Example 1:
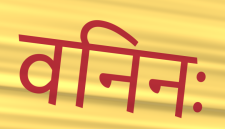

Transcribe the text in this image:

वनिनः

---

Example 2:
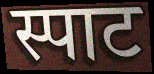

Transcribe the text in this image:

स्पाट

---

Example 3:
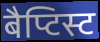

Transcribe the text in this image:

बैप्टिस्ट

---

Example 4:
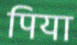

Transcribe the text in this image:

पिया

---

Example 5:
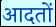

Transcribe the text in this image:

आदतों